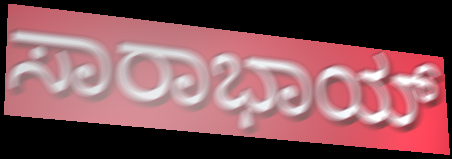
ಸಾರಾಭಾಯ್